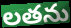
లతను